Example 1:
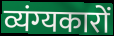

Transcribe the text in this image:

व्‍यंग्‍यकारों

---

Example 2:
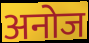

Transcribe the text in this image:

अनोज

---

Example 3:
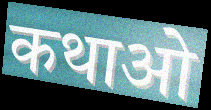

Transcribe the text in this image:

कथाओ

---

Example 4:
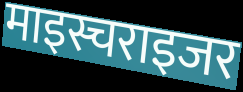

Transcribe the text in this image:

माइस्चराइजर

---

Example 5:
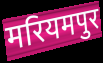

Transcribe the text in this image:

मरियमपुर